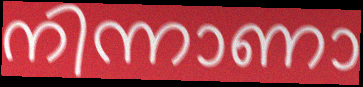
നിന്നാണാ